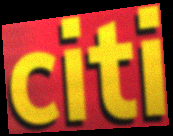
citi